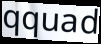
qquad